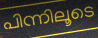
പിന്നിലൂടെ